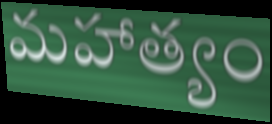
మహాత్యం